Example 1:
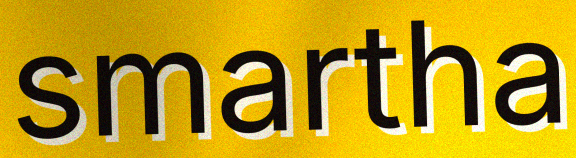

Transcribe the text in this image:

smartha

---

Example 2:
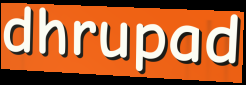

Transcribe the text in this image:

dhrupad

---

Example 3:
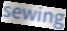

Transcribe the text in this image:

sewing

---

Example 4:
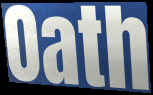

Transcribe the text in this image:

Oath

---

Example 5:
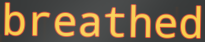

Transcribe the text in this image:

breathed